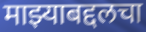
माझ्याबद्दलचा